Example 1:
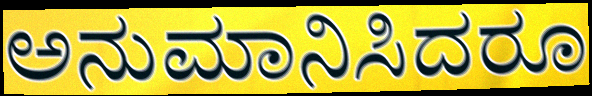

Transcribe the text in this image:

ಅನುಮಾನಿಸಿದರೂ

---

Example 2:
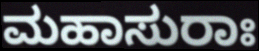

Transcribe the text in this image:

ಮಹಾಸುರಾಃ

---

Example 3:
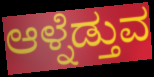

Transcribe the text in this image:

ಆಳ್ನೆಡ್ತುವ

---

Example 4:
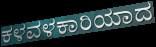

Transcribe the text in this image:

ಕಳವಳಕಾರಿಯಾದ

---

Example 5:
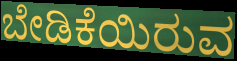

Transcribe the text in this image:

ಬೇಡಿಕೆಯಿರುವ